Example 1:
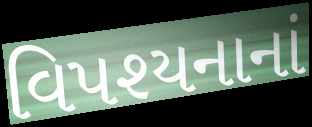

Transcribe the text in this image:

વિપશ્યનાનાં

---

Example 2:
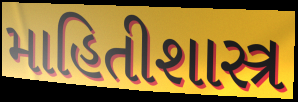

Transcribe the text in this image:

માહિતીશાસ્ત્ર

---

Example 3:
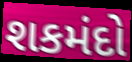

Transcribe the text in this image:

શકમંદો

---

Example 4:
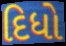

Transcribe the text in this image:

દિધો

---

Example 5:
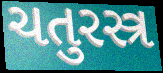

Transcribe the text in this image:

ચતુરસ્ત્ર